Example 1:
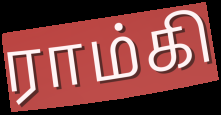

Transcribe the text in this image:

ராம்கி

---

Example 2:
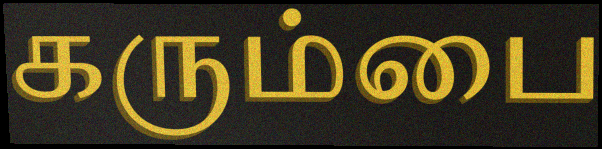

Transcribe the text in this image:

கரும்பை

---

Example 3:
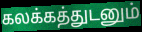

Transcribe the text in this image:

கலக்கத்துடனும்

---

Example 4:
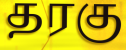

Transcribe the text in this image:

தரகு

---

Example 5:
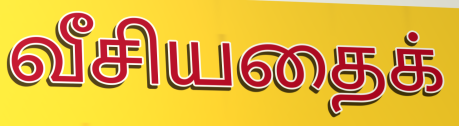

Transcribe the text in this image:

வீசியதைக்